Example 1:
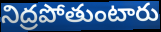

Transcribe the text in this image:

నిద్రపోతుంటారు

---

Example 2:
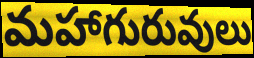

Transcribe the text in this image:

మహాగురువులు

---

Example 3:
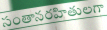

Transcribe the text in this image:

సంతానరహితులగా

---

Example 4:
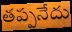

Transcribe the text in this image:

తప్పనేదు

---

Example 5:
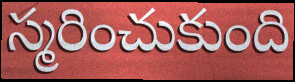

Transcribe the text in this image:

స్మరించుకుంది